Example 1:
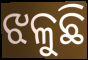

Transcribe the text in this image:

ଝଳୁଛି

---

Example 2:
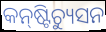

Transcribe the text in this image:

କନ୍‍ଷ୍ଟିଚ୍ୟୁସନ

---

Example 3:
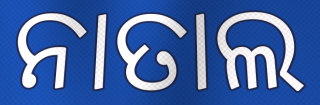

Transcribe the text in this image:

ନାତାଲ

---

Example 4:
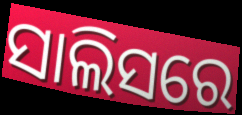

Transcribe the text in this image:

ସାଲିସରେ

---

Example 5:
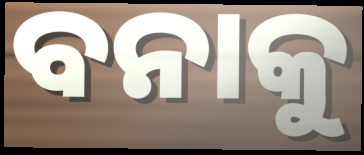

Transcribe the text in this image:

ବନାକୁ